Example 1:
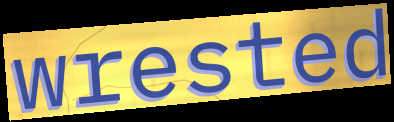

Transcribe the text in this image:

wrested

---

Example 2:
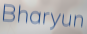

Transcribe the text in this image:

Bharyun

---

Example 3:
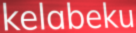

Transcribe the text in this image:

kelabeku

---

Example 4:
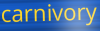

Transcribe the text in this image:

carnivory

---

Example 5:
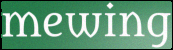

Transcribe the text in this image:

mewing